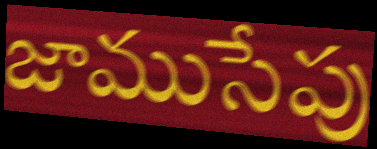
జాముసేపు